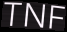
TNF